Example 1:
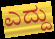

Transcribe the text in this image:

ಎದ್ದು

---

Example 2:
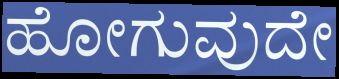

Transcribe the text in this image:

ಹೋಗುವುದೇ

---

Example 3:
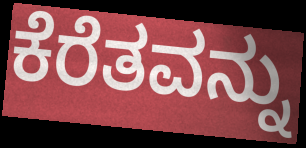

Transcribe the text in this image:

ಕೆರೆತವನ್ನು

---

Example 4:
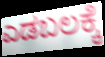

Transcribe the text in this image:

ಎಡಬಲಕ್ಕೆ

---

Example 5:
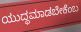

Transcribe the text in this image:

ಯುದ್ಧಮಾಡಬೇಕೆಂಬ